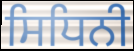
ਸਿਧਿਨੀ